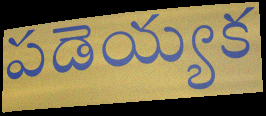
పడెయ్యక